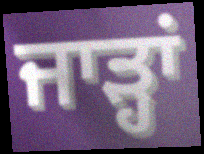
ਜਾੜ੍ਹਾਂ